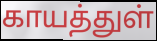
காயத்துள்